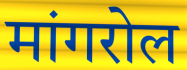
मांगरोल